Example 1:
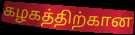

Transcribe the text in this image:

கழகத்திற்கான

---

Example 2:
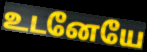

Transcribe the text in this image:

உடனேயே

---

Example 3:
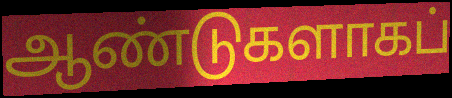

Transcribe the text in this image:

ஆண்டுகளாகப்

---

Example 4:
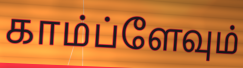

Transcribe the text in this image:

காம்ப்ளேவும்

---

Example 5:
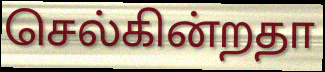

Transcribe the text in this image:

செல்கின்றதா